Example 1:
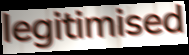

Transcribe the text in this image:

legitimised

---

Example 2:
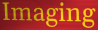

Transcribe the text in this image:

Imaging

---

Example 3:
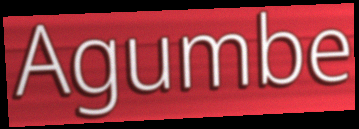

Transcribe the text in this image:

Agumbe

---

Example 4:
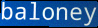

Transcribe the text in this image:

baloney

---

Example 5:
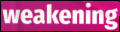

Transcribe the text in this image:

weakening